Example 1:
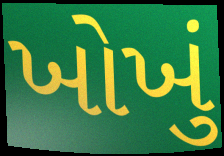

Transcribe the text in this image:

ખોખું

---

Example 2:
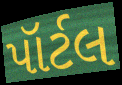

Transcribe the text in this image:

પૉર્ટલ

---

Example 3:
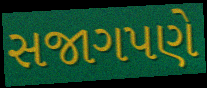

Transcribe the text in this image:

સજાગપણે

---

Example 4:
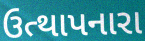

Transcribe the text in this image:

ઉત્થાપનારા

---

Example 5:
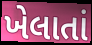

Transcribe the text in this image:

ખેલાતાં